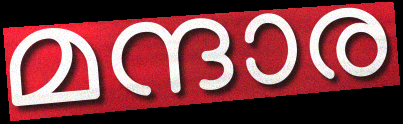
മന്ദാര